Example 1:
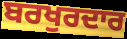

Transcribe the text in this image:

ਬਰਖੁਰਦਾਰ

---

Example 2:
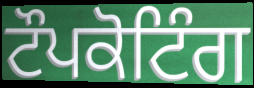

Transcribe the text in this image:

ਟੌਪਕੋਟਿੰਗ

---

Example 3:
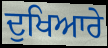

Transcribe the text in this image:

ਦੁਖਿਆਰੇ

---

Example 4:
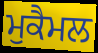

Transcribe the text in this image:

ਮੁਕੈਮਲ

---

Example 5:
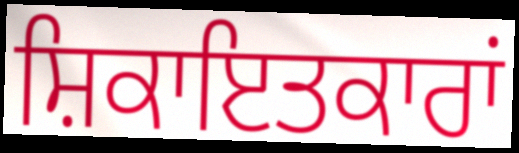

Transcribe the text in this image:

ਸ਼ਿਕਾਇਤਕਾਰਾਂ